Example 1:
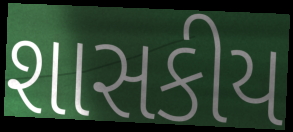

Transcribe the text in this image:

શાસકીય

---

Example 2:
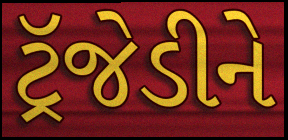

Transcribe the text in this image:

ટ્રૅજેડીને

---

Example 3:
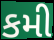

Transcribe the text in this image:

કમી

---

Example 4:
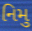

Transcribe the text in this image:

નિમુ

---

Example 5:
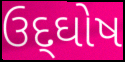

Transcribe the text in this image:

ઉદ્‌ઘોષ